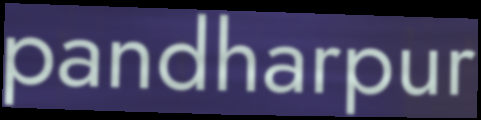
pandharpur